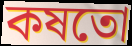
কষতো